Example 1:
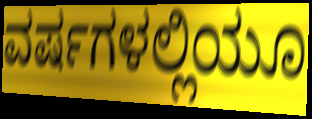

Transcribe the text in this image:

ವರ್ಷಗಳಲ್ಲಿಯೂ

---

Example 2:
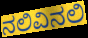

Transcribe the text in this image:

ನಲಿವಿನಲಿ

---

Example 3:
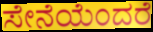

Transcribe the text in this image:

ಸೇನೆಯೆಂದರೆ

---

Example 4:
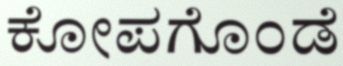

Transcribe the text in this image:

ಕೋಪಗೊಂಡೆ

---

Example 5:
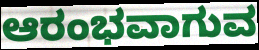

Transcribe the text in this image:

ಆರಂಭವಾಗುವ